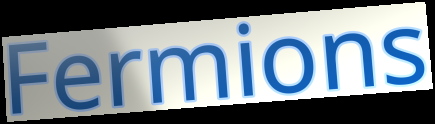
Fermions